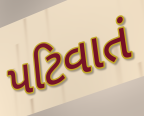
પટિવાતં